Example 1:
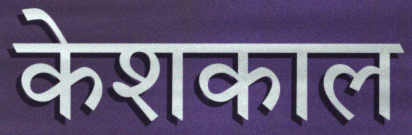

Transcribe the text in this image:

केशकाल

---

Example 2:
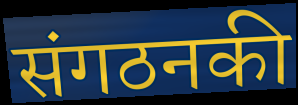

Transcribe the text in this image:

संगठनकी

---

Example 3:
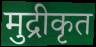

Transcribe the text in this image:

मुद्रीकृत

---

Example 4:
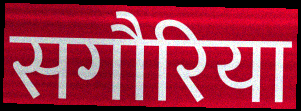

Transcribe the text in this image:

सगौरिया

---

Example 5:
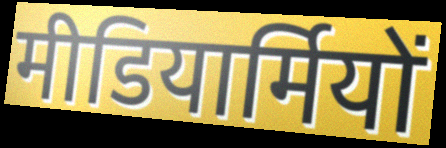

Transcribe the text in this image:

मीडियार्मियों